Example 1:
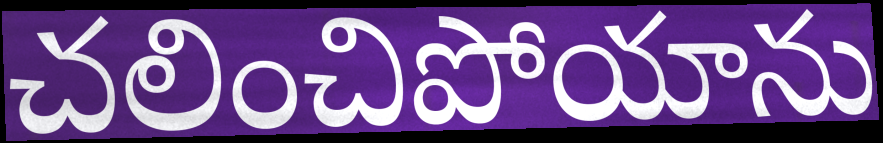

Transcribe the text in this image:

చలించిపోయాను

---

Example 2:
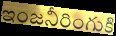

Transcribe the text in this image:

ఇంజనీరింగుకి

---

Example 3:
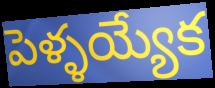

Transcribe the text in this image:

పెళ్ళయ్యేక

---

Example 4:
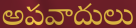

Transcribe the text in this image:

అపవాదులు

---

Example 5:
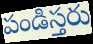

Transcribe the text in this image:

పండిస్తరు